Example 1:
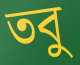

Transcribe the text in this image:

তবু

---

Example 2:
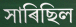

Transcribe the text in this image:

সাৰিছিল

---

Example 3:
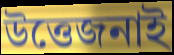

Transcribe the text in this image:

উত্তেজনাই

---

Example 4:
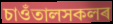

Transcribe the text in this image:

চাওঁতালসকলৰ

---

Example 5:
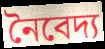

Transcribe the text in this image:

নৈবেদ্য